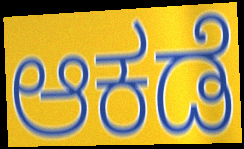
ಆಕಡೆ